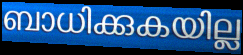
ബാധിക്കുകയില്ല